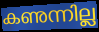
കണുന്നില്ല